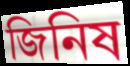
জিনিষ